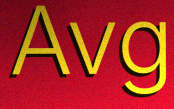
Avg